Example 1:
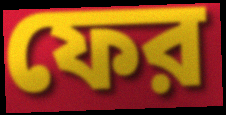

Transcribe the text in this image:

ফের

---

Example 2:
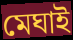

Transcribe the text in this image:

মেঘাই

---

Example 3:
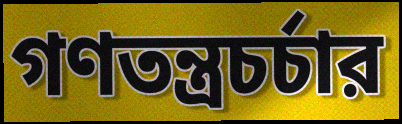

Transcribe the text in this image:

গণতন্ত্রচর্চার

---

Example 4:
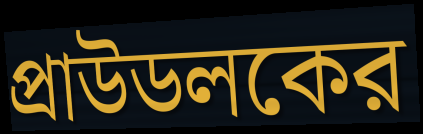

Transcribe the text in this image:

প্রাউডলকের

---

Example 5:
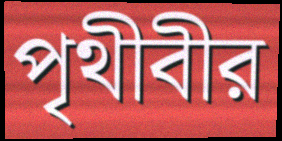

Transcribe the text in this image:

পৃথীবীর